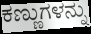
ಕಣ್ಣುಗಳನ್ನು